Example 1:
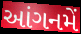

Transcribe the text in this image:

આંગનમેં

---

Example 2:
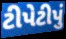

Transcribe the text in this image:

ટીપેટીપું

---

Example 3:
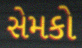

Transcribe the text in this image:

સેમકો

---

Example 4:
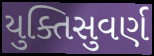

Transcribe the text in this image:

યુક્તિસુવર્ણ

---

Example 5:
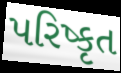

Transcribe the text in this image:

પરિષ્કૃત